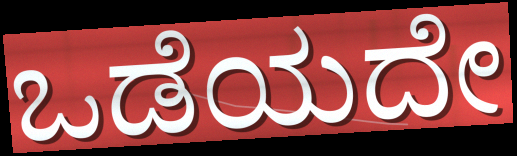
ಒಡೆಯದೇ